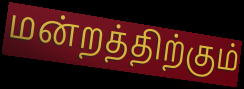
மன்றத்திற்கும்